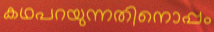
കഥപറയുന്നതിനൊപ്പം